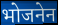
भोजनेन